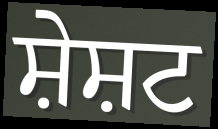
ਸ਼ੇਸ਼ਟ